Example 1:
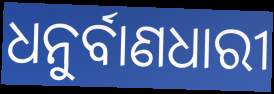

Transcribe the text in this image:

ଧନୁର୍ବାଣଧାରୀ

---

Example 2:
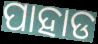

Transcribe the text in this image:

ପାହାଡ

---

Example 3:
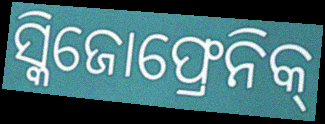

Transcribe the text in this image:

ସ୍କିଜୋଫ୍ରେନିକ୍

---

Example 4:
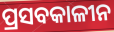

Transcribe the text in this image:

ପ୍ରସବକାଳୀନ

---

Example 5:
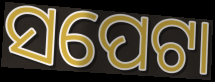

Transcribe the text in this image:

ସପେଟା